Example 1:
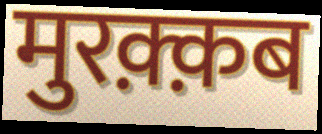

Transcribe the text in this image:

मुरक़्क़ब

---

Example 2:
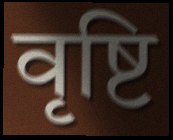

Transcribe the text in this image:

वृष्टि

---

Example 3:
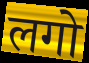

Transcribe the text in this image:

लगो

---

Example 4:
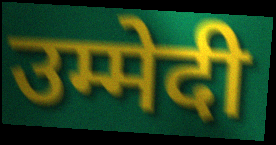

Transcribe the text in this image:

उम्मेदी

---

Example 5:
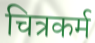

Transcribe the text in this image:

चित्रकर्म